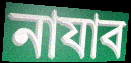
নাযাব